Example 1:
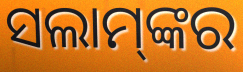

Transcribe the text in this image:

ସଲାମ୍‌ଙ୍କର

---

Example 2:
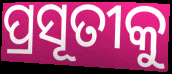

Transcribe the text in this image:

ପ୍ରସୂତୀକୁ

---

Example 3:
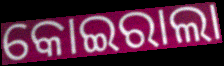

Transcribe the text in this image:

କୋଇରାଲା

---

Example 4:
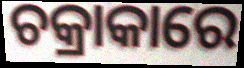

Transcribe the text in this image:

ଚକ୍ରାକାରେ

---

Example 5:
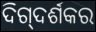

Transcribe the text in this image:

ଦିଗ୍‌ଦର୍ଶକର